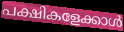
പക്ഷികളേക്കാൾ